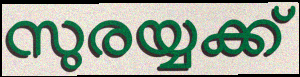
സുരയ്യക്ക്